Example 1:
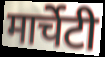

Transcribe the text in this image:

मार्चेटी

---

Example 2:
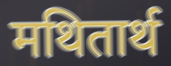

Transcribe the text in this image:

मथितार्थ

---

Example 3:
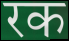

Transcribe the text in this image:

रक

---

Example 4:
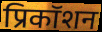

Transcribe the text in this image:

प्रिकॉशन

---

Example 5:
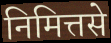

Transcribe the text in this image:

निमित्तसे